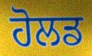
ਹੋਲਡ